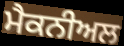
ਮੈਕਨੀਅਲ